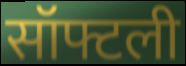
सॉफ्टली